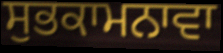
ਸੁਭਕਾਮਨਾਵਾ